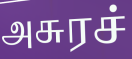
அசுரச்